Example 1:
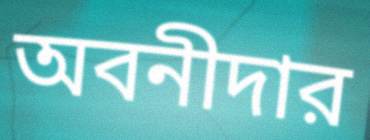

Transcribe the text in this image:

অবনীদার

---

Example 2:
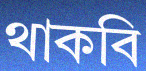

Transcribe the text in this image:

থাকবি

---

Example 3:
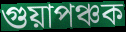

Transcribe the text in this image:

গুয়াপঞ্চক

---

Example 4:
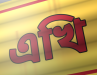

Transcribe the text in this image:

এখি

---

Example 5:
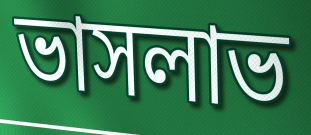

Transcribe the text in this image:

ভাসলাভ